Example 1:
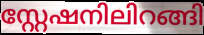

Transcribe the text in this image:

സ്റ്റേഷനിലിറങ്ങി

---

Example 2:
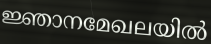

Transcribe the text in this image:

ജ്ഞാനമേഖലയിൽ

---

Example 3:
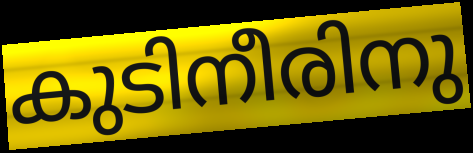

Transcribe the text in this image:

കുടിനീരിനു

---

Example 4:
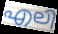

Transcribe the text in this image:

എലി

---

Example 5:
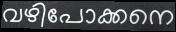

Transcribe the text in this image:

വഴിപോക്കനെ